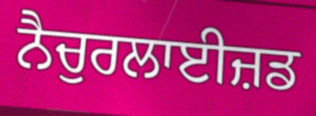
ਨੈਚੁਰਲਾਈਜ਼ਡ